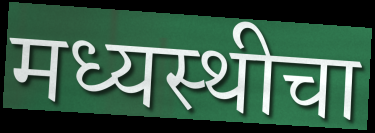
मध्यस्थीचा